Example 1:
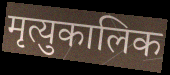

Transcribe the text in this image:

मृत्युकालिक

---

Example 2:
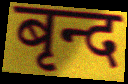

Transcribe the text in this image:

बृन्द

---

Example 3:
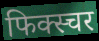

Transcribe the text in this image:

फिक्स्चर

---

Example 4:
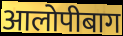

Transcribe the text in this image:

आलोपीबाग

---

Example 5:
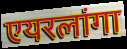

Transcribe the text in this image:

एयरलांगा